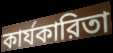
কার্যকারিতা